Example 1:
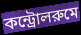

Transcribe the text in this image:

কন্ট্রোলরুমে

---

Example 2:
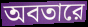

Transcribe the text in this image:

অবতারে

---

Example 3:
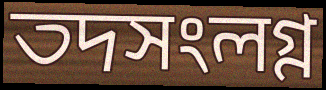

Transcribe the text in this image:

তদসংলগ্ন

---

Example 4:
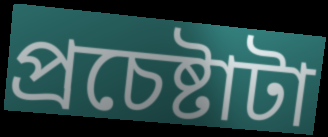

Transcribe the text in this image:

প্রচেষ্টাটা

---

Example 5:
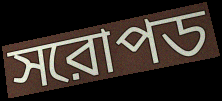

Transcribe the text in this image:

সরোপড